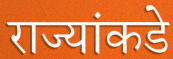
राज्यांकडे